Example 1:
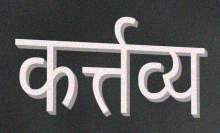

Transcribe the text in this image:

कर्त्तव्य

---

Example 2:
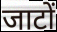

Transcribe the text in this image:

जाटों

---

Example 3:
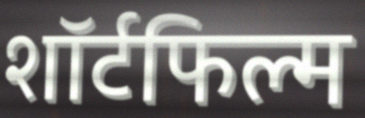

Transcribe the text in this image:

शॉर्टफिल्म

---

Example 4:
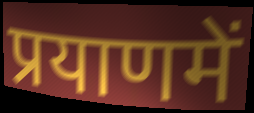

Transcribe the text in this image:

प्रयाणमें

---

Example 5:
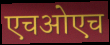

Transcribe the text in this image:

एचओएच